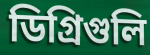
ডিগ্রিগুলি